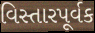
વિસ્તારપૂર્વક